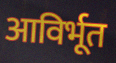
आविर्भूत